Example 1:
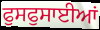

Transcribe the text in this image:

ਫੁਸਫੁਸਾਈਆਂ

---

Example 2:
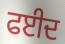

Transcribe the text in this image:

ਫਈਦ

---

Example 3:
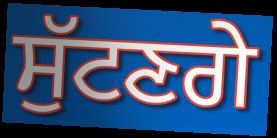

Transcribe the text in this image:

ਸੁੱਟਣਗੇ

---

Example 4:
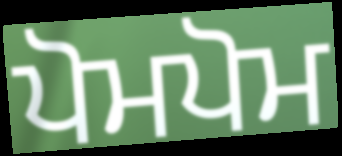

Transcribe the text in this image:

ਪੋਮਪੋਮ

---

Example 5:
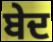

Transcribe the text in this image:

ਬੇਦ